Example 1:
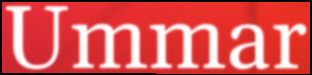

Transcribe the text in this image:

Ummar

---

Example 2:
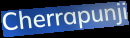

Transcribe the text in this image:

Cherrapunji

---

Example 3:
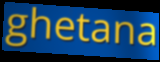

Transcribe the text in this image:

ghetana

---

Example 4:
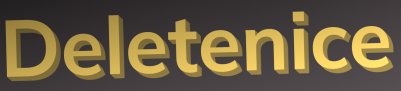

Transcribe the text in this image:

Deletenice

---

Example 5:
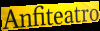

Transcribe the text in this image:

Anfiteatro